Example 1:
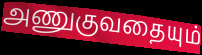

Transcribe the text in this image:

அணுகுவதையும்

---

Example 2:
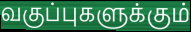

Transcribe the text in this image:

வகுப்புகளுக்கும்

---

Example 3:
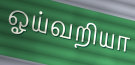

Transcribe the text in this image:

ஓய்வறியா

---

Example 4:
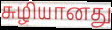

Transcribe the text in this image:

சுழியானது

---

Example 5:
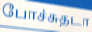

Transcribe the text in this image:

போச்சுதடா